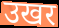
उखर